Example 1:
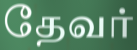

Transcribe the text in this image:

தேவர்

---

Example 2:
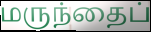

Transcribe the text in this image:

மருந்தைப்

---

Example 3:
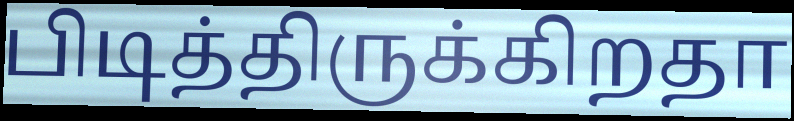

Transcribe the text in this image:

பிடித்திருக்கிறதா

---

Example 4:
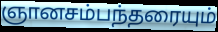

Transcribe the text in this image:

ஞானசம்பந்தரையும்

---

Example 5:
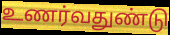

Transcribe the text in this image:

உணர்வதுண்டு